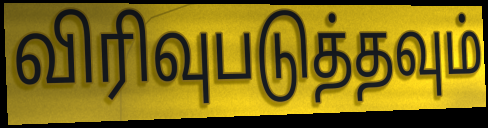
விரிவுபடுத்தவும்